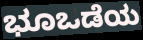
ಭೂಒಡೆಯ